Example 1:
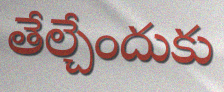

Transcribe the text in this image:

తేల్చేందుకు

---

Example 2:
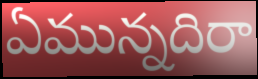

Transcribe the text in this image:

ఏమున్నదిరా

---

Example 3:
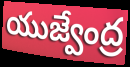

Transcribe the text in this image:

యుజ్వేంద్ర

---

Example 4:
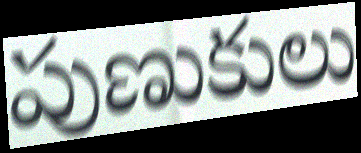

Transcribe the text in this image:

పుణుకులు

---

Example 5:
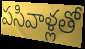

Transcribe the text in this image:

పసివాళ్లతో